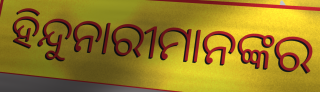
ହିନ୍ଦୁନାରୀମାନଙ୍କର